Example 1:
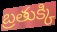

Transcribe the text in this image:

బ్రతుక్కి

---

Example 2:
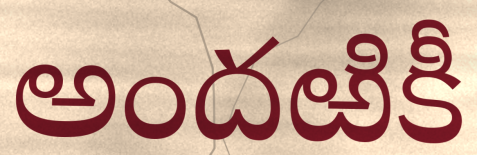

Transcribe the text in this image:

అందఱికీ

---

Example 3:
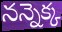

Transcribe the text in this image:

నన్నెక్క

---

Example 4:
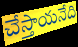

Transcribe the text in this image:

చేస్తాయనేది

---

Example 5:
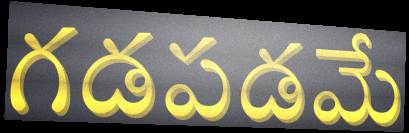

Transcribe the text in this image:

గడపడమే